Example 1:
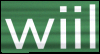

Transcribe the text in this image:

wiil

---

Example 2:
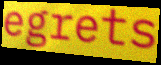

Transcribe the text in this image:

egrets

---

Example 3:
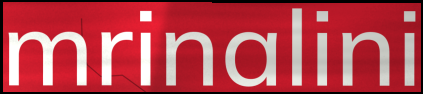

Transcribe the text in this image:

mrinalini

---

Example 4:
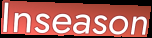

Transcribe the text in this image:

Inseason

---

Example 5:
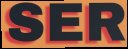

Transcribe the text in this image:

SER